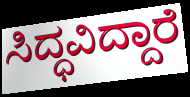
ಸಿದ್ಧವಿದ್ದಾರೆ